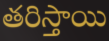
తరిస్తాయి